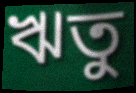
ঋতু